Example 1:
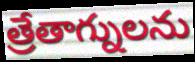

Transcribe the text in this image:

త్రేతాగ్నులను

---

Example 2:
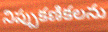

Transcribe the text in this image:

నిప్పుకణికలను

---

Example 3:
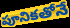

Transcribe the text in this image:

పూనికతోనే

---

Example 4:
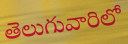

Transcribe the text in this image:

తెలుగువారిలో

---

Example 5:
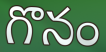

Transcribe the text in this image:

గొనం